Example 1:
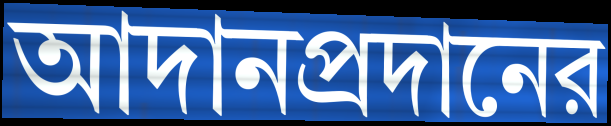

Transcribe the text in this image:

আদানপ্রদানের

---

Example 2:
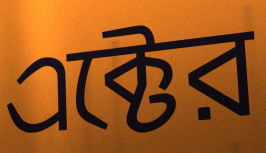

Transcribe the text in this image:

এক্টের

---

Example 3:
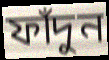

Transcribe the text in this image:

ফাঁদুন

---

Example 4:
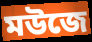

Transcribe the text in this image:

মউজে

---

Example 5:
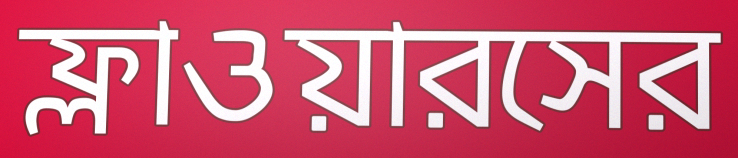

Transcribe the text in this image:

ফ্লাওয়ারসের